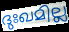
ദുഃഖമില്ല